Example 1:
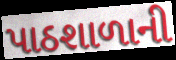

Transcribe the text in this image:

પાઠશાળાની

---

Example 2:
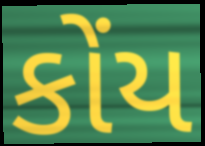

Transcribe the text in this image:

કોંય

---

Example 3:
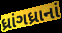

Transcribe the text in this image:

ધ્રાંગધ્રાનાં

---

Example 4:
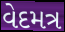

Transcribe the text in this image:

વેદમત્ર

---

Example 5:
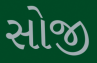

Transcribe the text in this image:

સોજી